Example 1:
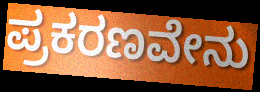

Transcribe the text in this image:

ಪ್ರಕರಣವೇನು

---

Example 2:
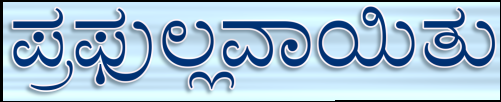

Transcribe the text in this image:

ಪ್ರಫುಲ್ಲವಾಯಿತು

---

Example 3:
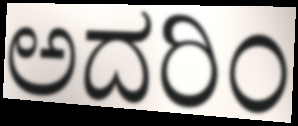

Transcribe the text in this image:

ಅದರಿಂ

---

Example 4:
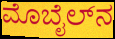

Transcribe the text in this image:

ಮೊಬೈಲ್‌ನ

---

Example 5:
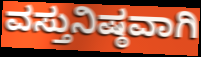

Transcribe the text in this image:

ವಸ್ತುನಿಷ್ಠವಾಗಿ